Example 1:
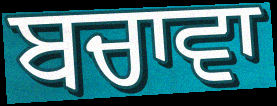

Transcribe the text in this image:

ਬਚਾਵਾ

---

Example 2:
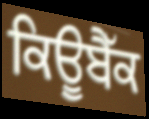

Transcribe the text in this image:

ਕਿਊਬੈੱਕ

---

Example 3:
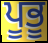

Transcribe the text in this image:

ਪੂਭੂ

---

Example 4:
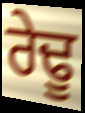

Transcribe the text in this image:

ਰੇਢੂ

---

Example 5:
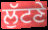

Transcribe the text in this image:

ਲੁੱਟਣੇ